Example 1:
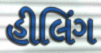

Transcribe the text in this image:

હીલિંગ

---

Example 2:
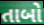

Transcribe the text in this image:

તાબો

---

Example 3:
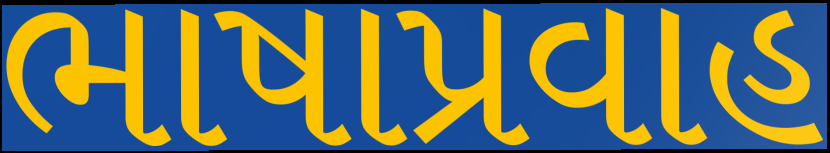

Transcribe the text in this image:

ભાષાપ્રવાહ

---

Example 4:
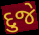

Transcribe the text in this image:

દુજે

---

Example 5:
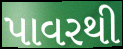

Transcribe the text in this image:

પાવરથી